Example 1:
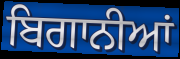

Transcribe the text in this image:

ਬਿਗਾਨੀਆਂ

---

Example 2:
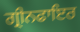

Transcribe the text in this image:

ਗ੍ਰੀਨਫਾਇਰ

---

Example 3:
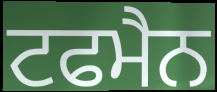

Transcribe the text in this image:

ਟਫਮੈਨ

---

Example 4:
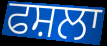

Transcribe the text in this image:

ਫਸ਼ਲਾ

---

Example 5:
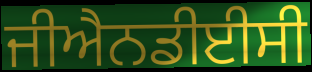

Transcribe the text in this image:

ਜੀਐਨਡੀਈਸੀ